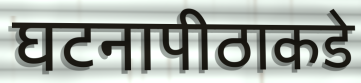
घटनापीठाकडे